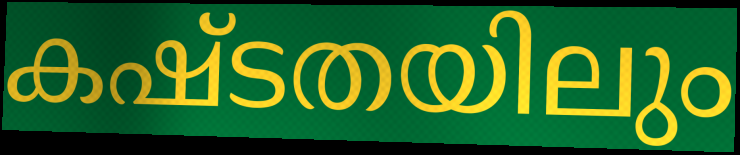
കഷ്ടതയിലും